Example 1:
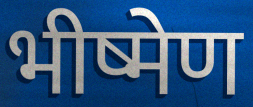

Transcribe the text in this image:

भीष्मेण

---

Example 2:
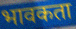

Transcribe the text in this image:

भावकता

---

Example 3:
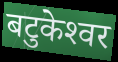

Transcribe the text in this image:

बटुकेश्‍वर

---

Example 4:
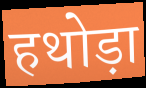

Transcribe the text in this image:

हथोड़ा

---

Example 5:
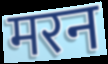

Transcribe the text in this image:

मरन